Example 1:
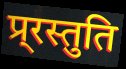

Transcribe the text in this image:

प्र्रस्तुति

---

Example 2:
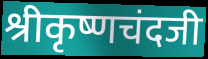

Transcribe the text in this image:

श्रीकृष्णचंदजी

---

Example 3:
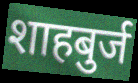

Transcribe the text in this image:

शाहबुर्ज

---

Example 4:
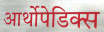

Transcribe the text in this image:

आर्थोपेडिक्स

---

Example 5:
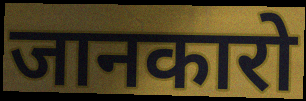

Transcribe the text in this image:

जानकारो